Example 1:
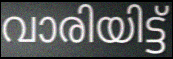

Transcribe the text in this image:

വാരിയിട്ട്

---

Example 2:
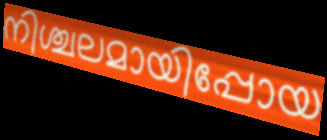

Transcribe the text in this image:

നിശ്ചലമായിപ്പോയ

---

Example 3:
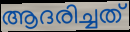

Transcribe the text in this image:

ആദരിച്ചത്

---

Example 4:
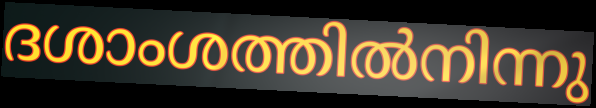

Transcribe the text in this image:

ദശാംശത്തിൽനിന്നു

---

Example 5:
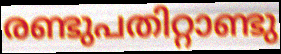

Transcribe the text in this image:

രണ്ടുപതിറ്റാണ്ടു